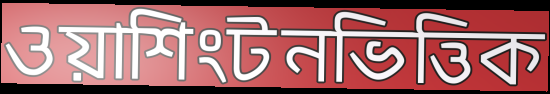
ওয়াশিংটনভিত্তিক